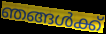
ഞങ്ങൾക്ക്